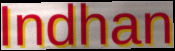
Indhan